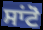
ਸਾਂਟੋ